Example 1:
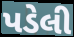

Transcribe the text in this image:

પડેલી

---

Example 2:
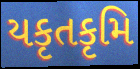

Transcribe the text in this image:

યકૃતકૃમિ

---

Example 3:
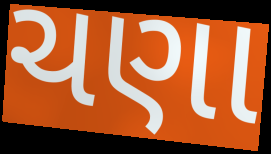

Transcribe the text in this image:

ચણા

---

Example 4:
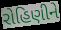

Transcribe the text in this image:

રોહિણીને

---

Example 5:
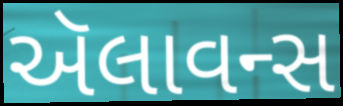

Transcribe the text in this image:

ઍલાવન્સ